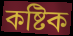
কষ্টিক